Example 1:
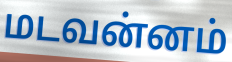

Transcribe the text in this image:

மடவன்னம்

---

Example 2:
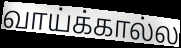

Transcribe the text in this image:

வாய்க்கால்ல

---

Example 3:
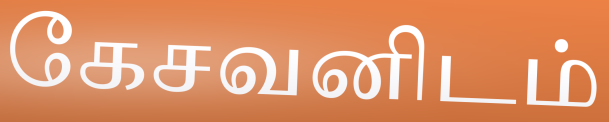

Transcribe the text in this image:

கேசவனிடம்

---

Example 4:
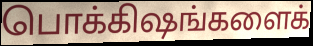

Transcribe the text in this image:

பொக்கிஷங்களைக்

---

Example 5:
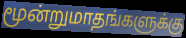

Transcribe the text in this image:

மூன்றுமாதங்களுக்கு